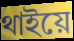
থাইয়ে